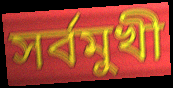
সর্বমুখী